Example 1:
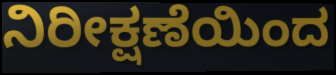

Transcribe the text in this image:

ನಿರೀಕ್ಷಣೆಯಿಂದ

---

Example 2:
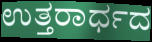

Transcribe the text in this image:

ಉತ್ತರಾರ್ಧದ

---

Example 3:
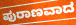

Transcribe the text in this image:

ಪುರಾಣವಾದ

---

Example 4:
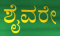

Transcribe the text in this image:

ಶೈವರೇ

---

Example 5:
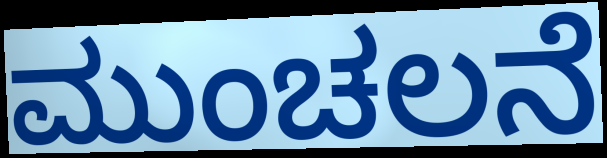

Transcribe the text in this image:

ಮುಂಚಲನೆ